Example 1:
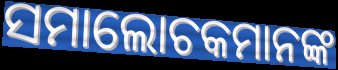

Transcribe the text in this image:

ସମାଲୋଚକମାନଙ୍କ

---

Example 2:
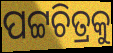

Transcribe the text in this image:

ପଟ୍ଟଚିତ୍ରକୁ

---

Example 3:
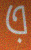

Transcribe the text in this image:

ଏ଼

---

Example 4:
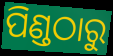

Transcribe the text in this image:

ପିଣ୍ଡଠାରୁ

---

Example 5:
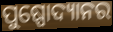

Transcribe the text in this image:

ପୁଷ୍ପୋଦ୍ୟାନର